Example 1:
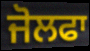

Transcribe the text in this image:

ਜੋਲਫਾ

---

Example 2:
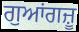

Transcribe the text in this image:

ਗੁਆਂਗਜ਼ੂ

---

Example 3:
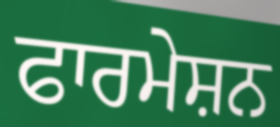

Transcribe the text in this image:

ਫਾਰਮੇਸ਼ਨ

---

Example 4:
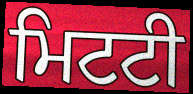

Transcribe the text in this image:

ਮਿਟਟੀ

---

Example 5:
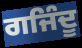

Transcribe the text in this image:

ਗਜਿੰਦੂ